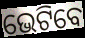
ଭେଟିବେ